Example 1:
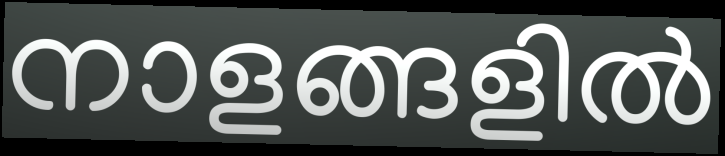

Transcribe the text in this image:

നാളങ്ങളിൽ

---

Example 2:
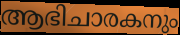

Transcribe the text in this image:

ആഭിചാരകനും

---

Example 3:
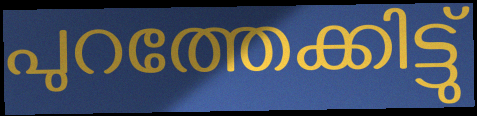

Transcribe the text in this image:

പുറത്തേക്കിട്ടു്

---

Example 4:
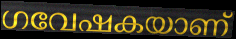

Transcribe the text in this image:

ഗവേഷകയാണ്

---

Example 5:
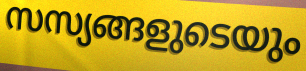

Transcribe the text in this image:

സസ്യങ്ങളുടെയും